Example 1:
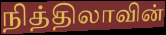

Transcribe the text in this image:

நித்திலாவின்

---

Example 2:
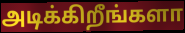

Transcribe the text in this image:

அடிக்கிறீங்களா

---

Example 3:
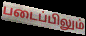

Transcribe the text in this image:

படைப்பிலும்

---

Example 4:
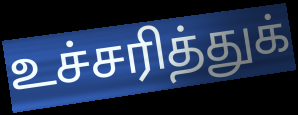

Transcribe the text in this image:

உச்சரித்துக்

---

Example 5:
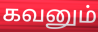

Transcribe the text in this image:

கவனும்